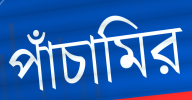
পাঁচামির